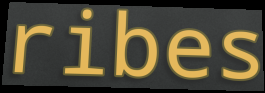
ribes